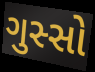
ગુસ્સો